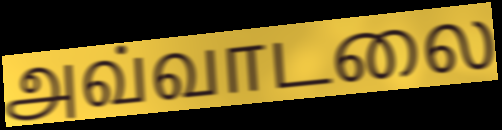
அவ்வாடலை